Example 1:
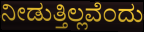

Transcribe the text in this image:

ನೀಡುತ್ತಿಲ್ಲವೆಂದು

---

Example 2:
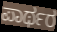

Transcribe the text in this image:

ಪಾರ್ಥರ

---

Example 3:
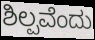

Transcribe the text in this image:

ಶಿಲ್ಪವೆಂದು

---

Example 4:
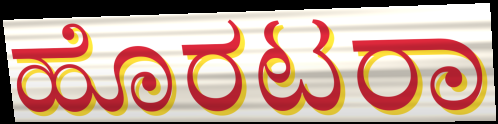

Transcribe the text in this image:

ಹೊರಟರಾ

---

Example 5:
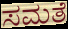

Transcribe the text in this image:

ಸಮತೆ